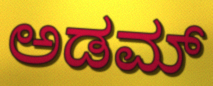
ಅಡಮ್